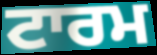
ਟਾਰਮ